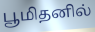
பூமிதனில்